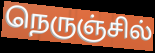
நெருஞ்சில்